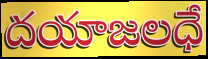
దయాజలధే